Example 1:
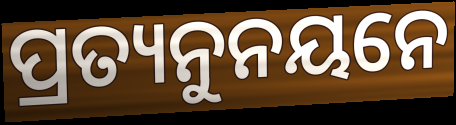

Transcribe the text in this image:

ପ୍ରତ୍ୟନୁନୟନେ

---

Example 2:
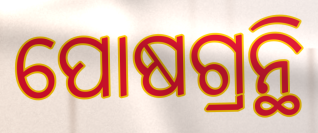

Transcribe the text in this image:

ପୋଷଗ୍ରନ୍ଥି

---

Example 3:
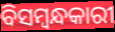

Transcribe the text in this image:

ବିସମ୍ବନ୍ଧକାରୀ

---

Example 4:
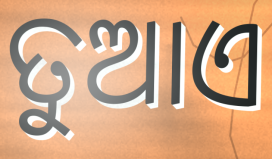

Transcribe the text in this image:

ତୁଆଏ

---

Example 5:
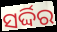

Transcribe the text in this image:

ସର୍ଦ୍ଦିର